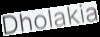
Dholakia